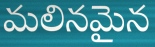
మలినమైన